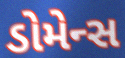
ડોમેન્સ